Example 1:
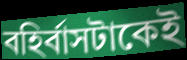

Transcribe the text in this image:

বহির্বাসটাকেই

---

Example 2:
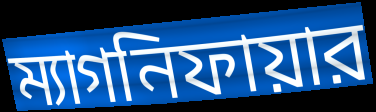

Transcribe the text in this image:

ম্যাগনিফায়ার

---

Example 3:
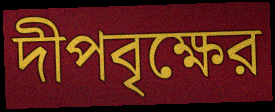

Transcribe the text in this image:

দীপবৃক্ষের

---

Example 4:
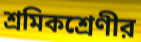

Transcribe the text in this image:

শ্রমিকশ্রেণীর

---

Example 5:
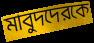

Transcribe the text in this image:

মাবুদদেরকে